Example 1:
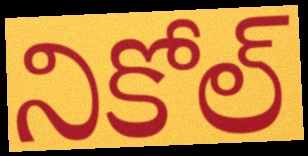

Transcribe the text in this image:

నికోల్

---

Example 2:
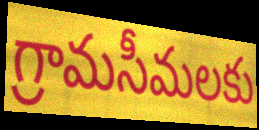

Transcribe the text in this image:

గ్రామసీమలకు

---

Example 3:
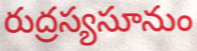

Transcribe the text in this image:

రుద్రస్యసూనుం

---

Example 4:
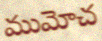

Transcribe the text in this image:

ముమోచ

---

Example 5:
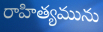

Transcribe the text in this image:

రాహిత్యమును